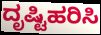
ದೃಷ್ಟಿಹರಿಸಿ